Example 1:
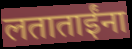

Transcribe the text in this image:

लताताईंना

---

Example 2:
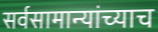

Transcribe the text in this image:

सर्वसामान्यांच्याच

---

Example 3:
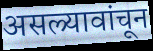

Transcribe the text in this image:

असल्यावांचून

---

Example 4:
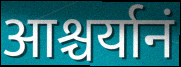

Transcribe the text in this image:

आश्चर्यानं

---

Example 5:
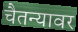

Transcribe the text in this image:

चैतन्यावर